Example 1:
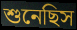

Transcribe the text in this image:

শুনেছিস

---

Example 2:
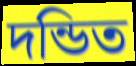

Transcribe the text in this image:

দন্ডিত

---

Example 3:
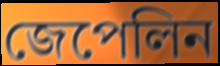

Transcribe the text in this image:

জেপেলিন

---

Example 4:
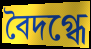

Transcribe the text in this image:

বৈদগ্ধে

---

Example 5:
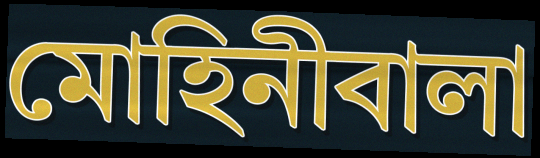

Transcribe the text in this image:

মোহিনীবালা